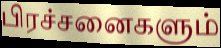
பிரச்சனைகளும்